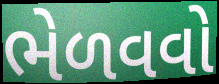
ભેળવવો